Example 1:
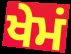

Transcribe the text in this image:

ਖੇਮਂ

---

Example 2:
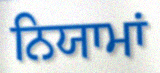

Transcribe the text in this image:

ਨਿਯਾਮਾਂ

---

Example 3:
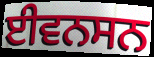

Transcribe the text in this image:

ਈਵਨਸਨ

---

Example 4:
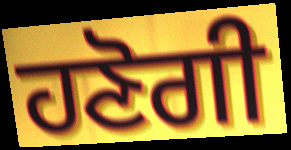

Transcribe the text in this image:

ਹਣੋਗੀ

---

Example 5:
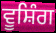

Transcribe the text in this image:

ਵੂਸ਼ਿੰਗ